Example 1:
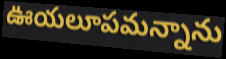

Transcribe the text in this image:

ఊయలూపమన్నాను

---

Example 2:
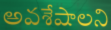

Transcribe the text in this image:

అవశేషాలని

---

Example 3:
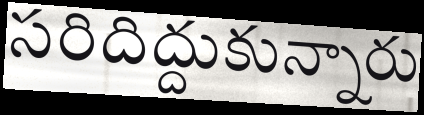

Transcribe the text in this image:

సరిదిద్దుకున్నారు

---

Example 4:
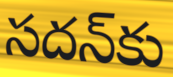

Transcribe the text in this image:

సదన్‌కు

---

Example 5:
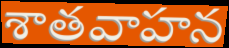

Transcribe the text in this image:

శాతవాహన